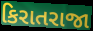
કિરાતરાજા